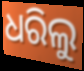
ଧରିଲୁ